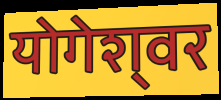
योगेश्वर